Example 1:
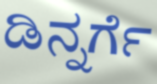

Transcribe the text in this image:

ಡಿನ್ನರ್ಗೆ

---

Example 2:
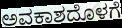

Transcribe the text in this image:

ಅವಕಾಶದೊಳಗೆ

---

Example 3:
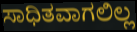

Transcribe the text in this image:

ಸಾಧಿತವಾಗಲಿಲ್ಲ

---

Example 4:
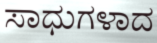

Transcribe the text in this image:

ಸಾಧುಗಳಾದ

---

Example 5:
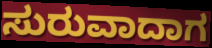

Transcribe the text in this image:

ಸುರುವಾದಾಗ